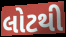
લોટથી